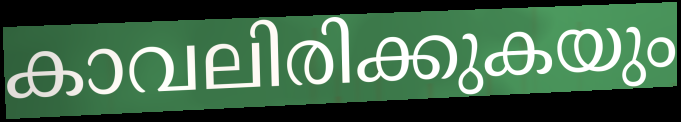
കാവലിരിക്കുകയും